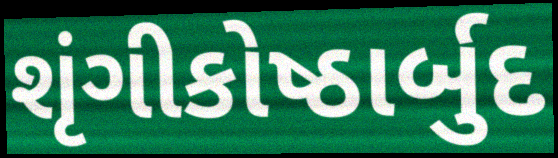
શૃંગીકોષ્ઠાર્બુદ